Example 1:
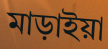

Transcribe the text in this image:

মাড়াইয়া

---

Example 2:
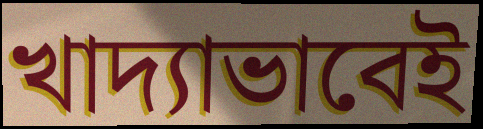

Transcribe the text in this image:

খাদ্যাভাবেই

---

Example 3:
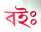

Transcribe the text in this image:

বইঃ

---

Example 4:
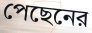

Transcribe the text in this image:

পেছেনের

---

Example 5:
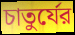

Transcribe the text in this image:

চাতুর্যের